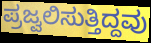
ಪ್ರಜ್ವಲಿಸುತ್ತಿದ್ದವು